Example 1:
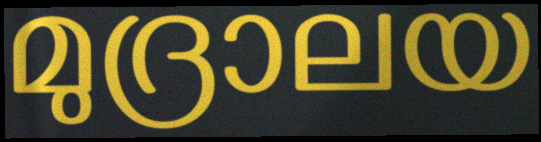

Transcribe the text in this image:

മുദ്രാലയ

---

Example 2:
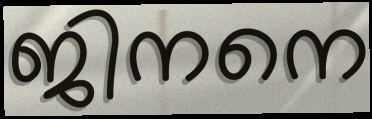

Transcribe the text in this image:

ജിനനെ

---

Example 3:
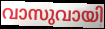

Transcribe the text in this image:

വാസുവായി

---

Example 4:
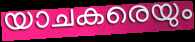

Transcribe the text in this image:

യാചകരെയും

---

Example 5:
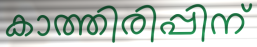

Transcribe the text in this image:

കാത്തിരിപ്പിന്